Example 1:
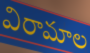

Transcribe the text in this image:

విరామాల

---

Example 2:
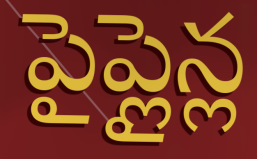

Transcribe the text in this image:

పైప్లైన్ల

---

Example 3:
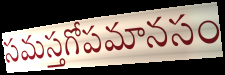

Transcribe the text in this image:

సమస్తగోపమానసం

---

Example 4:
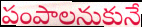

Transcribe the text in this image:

పంపాలనుకునే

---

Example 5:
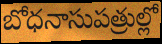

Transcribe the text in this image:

బోధనాసుపత్రుల్లో